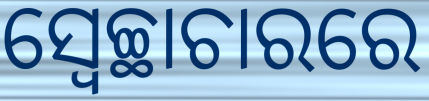
ସ୍ବେଚ୍ଛାଚାରରେ